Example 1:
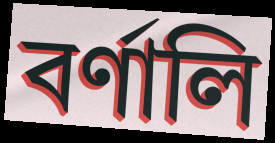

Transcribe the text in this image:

বর্ণালি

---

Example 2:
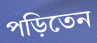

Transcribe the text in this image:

পড়িতেন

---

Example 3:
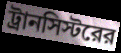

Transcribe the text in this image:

ট্রানসিস্টরের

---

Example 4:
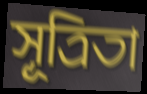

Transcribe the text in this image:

সূত্রিতা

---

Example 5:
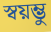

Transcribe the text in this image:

স্বয়ম্ভু